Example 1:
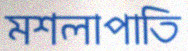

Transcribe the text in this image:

মশলাপাতি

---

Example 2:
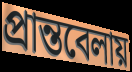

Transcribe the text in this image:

প্রান্তবেলায়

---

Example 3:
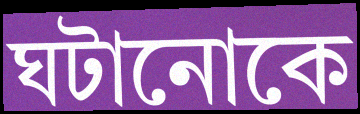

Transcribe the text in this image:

ঘটানোকে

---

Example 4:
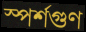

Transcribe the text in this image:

স্পর্শগুণ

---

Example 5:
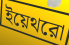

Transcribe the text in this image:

ইয়েথরো